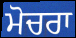
ਮੋਚਰਾ